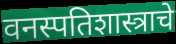
वनस्पतिशास्त्राचे